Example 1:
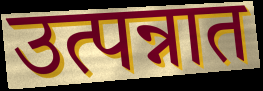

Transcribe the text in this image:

उत्पन्नात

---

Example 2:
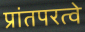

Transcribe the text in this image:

प्रांतपरत्वे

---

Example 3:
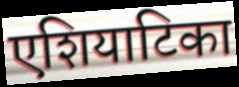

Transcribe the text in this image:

एशियाटिका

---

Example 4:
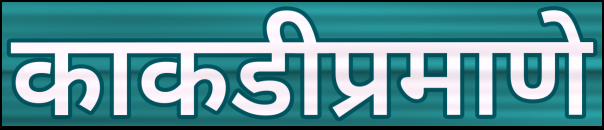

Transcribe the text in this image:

काकडीप्रमाणे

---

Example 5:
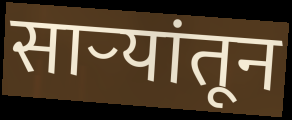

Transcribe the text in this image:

साऱ्यांतून